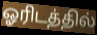
ஓரிடத்தில்